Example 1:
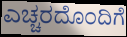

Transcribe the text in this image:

ಎಚ್ಚರದೊಂದಿಗೆ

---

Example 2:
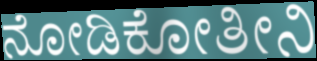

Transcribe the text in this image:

ನೋಡಿಕೋತೀನಿ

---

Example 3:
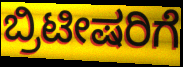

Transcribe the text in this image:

ಬ್ರಿಟೀಷರಿಗೆ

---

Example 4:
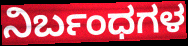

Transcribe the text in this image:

ನಿರ್ಬಂಧಗಳ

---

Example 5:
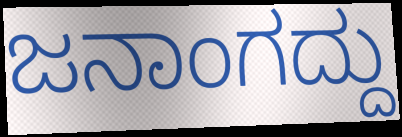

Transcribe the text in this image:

ಜನಾಂಗದ್ದು